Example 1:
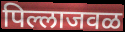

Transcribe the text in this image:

पिल्लाजवळ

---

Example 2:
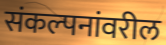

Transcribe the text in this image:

संकल्पनांवरील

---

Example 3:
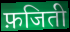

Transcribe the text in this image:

फ़जिती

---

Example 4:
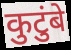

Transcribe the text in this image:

कुटुंबे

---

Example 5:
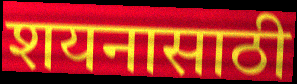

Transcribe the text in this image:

शयनासाठी